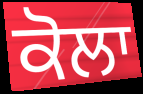
ਕੋਲਾ